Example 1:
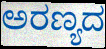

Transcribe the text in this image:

ಅರಣ್ಯದ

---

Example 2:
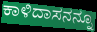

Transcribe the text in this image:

ಕಾಳಿದಾಸನನ್ನೂ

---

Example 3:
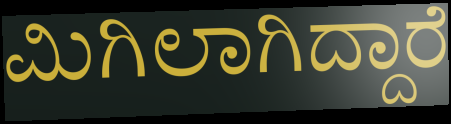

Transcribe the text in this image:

ಮಿಗಿಲಾಗಿದ್ದಾರೆ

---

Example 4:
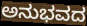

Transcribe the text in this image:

ಅನುಭವದ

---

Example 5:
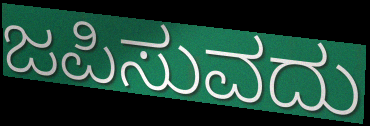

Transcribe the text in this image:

ಜಪಿಸುವದು